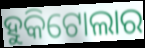
ହୁକିଟୋଲାର